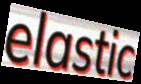
elastic